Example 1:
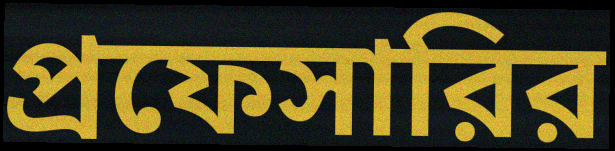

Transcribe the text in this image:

প্রফেসারির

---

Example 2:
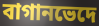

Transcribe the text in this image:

বাগানভেদে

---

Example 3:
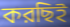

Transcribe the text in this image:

করছিই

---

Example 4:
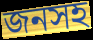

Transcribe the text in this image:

জনসহ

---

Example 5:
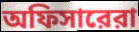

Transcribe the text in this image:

অফিসারেরা